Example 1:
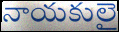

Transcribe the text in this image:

నాయకులై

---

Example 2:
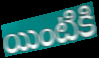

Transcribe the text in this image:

యింటికి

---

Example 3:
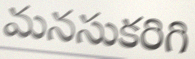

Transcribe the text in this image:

మనసుకరిగి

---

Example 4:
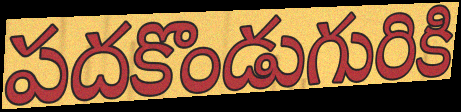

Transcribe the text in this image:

పదకొండుగురికి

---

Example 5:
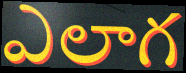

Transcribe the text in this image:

ఎలాగ